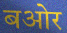
बओर